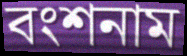
বংশনাম